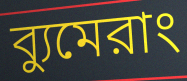
ব্যুমেরাং